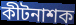
কীটনাশক